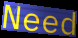
Need